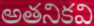
అతనికవి